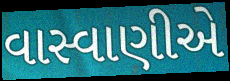
વાસ્વાણીએ